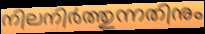
നിലനിർത്തുന്നതിനും